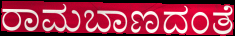
ರಾಮಬಾಣದಂತೆ